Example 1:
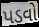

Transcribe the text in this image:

પડવો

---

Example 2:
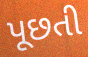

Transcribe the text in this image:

પૂછતી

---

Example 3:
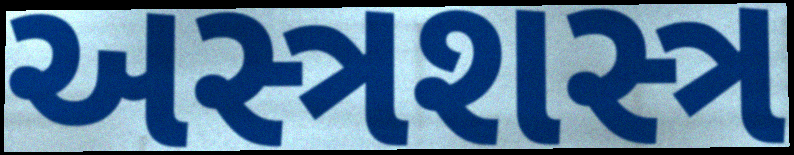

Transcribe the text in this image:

અસ્ત્રશસ્ત્ર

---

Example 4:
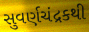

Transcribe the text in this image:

સુવર્ણચંદ્રકથી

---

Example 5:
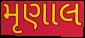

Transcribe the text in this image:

મૃણાલ